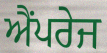
ਐਂਪਰੇਜ